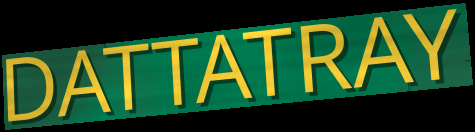
DATTATRAY